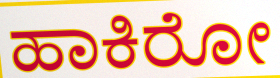
ಹಾಕಿರೋ